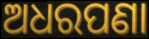
ଅଧରପଣା